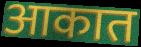
आकात